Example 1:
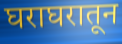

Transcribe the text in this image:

घराघरातून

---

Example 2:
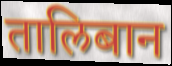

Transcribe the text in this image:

तालिबान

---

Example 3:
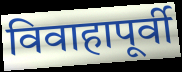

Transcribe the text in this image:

विवाहापूर्वी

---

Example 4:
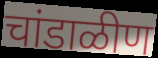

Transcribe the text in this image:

चांडाळीण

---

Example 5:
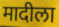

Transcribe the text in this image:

मादीला